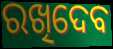
ରଖିଦେବ